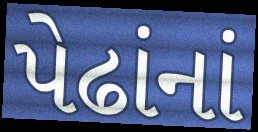
પેઢાંનાં